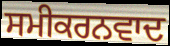
ਸਮੀਕਰਨਵਾਦ